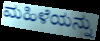
ಮಹಿಳೆಯನ್ನು